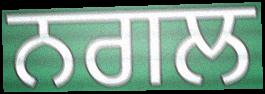
ਨਗਲ